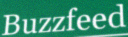
Buzzfeed